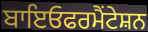
ਬਾਇਓਫਰਮੈਂਟੇਸ਼ਨ